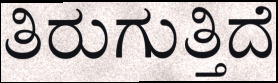
ತಿರುಗುತ್ತಿದೆ